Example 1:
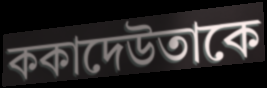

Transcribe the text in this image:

ককাদেউতাকে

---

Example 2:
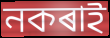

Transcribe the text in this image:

নকৰাই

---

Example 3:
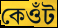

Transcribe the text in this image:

কেওঁট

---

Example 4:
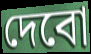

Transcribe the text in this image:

দেবো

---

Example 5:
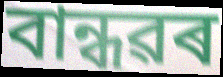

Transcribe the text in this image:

বান্ধৱৰ